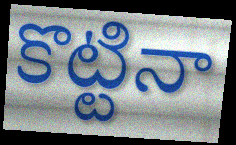
కొట్టినా